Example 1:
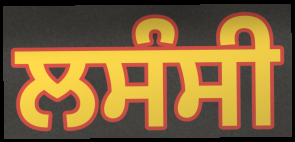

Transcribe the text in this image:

ਲਸੰਸੀ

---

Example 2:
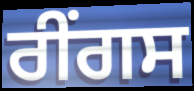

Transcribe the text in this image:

ਰੀਂਗਸ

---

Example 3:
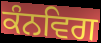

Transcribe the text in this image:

ਕੰਨਵਿਗ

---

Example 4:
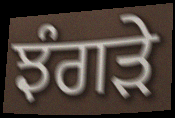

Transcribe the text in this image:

ਝੰਗੜੇ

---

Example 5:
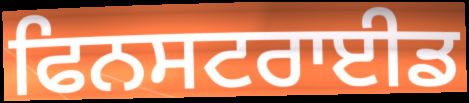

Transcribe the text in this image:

ਫਿਨਸਟਰਾਈਡ